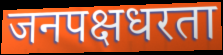
जनपक्षधरता